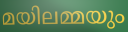
മയിലമ്മയും